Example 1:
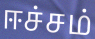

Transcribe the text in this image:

ஈச்சம்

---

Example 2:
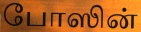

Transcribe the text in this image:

போஸின்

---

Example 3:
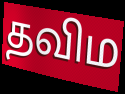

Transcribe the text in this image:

தவிம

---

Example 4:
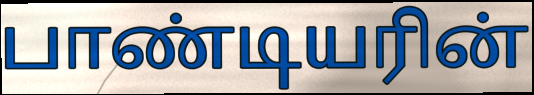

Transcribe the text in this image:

பாண்டியரின்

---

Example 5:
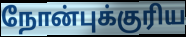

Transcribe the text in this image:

நோன்புக்குரிய